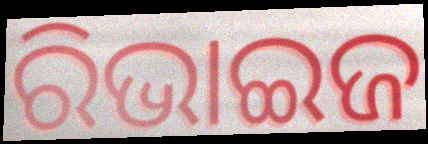
ରିଭାଇଜ